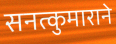
सनत्कुमाराने